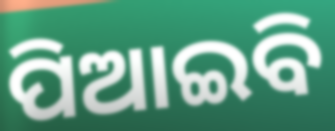
ପିଆଇବି